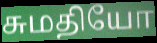
சுமதியோ